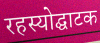
रहस्योद्घाटक